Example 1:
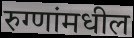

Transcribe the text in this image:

रुग्णांमधील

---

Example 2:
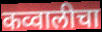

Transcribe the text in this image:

कव्वालीचा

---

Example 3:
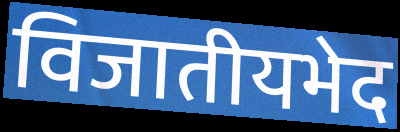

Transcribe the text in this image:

विजातीयभेद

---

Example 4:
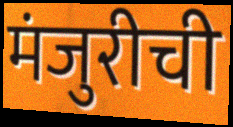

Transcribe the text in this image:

मंजुरीची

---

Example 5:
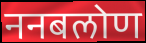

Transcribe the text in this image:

ननबलोण